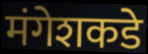
मंगेशकडे